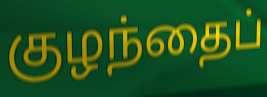
குழந்தைப்